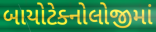
બાયોટેક્નોલોજીમાં